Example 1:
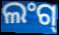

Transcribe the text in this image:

ଲଂଗ୍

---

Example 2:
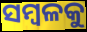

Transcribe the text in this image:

ସମ୍ବଳକୁ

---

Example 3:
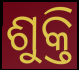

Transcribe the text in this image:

ଶୁକ୍ତି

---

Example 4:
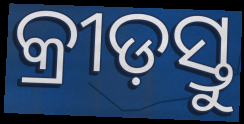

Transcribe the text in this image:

କ୍ରୀଡ଼ସ୍ତୁ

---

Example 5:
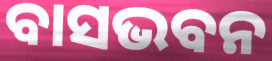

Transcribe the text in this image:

ବାସଭବନ